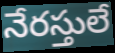
నేరస్తులే